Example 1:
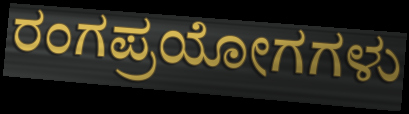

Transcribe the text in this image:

ರಂಗಪ್ರಯೋಗಗಳು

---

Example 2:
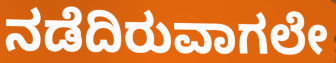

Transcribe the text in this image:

ನಡೆದಿರುವಾಗಲೇ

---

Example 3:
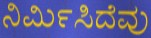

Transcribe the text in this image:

ನಿರ್ಮಿಸಿದೆವು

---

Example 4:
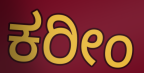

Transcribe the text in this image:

ಕರೀಂ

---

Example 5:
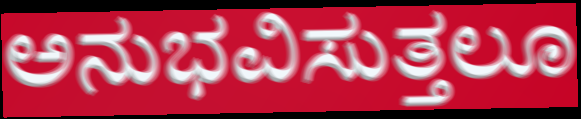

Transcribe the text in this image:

ಅನುಭವಿಸುತ್ತಲೂ